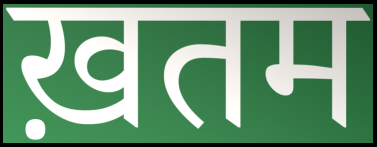
ख़तम